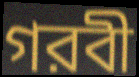
গরবী